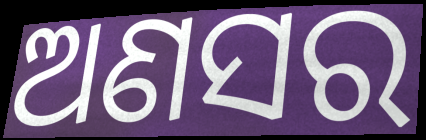
ଅଣସର